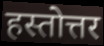
हस्तोत्तर